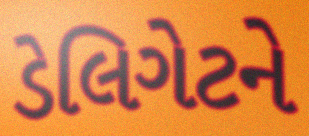
ડેલિગેટને